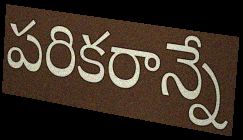
పరికరాన్నే